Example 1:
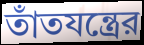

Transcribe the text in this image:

তাঁতযন্ত্রের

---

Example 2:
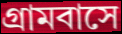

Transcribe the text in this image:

গ্রামবাসে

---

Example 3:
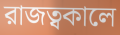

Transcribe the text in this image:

রাজত্বকালে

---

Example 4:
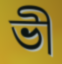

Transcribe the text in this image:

ভী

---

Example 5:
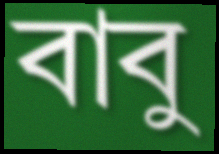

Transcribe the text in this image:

বাবু